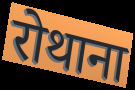
रोथाना